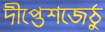
দীপ্তেশজেঠু